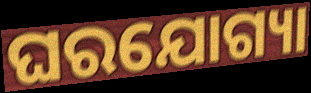
ଘରଯୋଗ୍ୟା